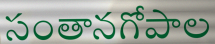
సంతానగోపాల